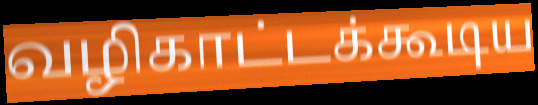
வழிகாட்டக்கூடிய